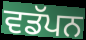
ਵਡੱਪਨ